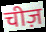
चीज़